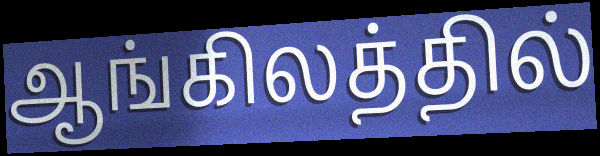
ஆங்கிலத்தில்